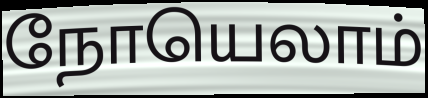
நோயெலாம்